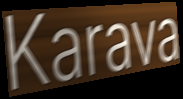
Karava